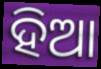
ହିଆ